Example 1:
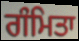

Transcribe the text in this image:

ਗੰਮਿਤਾ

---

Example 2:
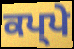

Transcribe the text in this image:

ਕਪ੍ਪੇ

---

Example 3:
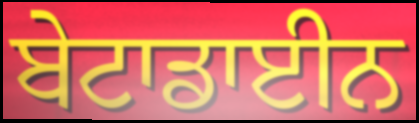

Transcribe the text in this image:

ਬੇਟਾਡਾਈਨ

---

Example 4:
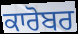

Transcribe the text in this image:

ਕਾਰੋਬਰ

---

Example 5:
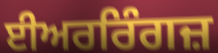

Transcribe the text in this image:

ਈਅਰਰਿੰਗਜ਼